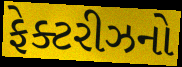
ફેક્ટરીઝનો